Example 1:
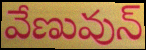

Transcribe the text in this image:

వేణువున్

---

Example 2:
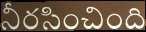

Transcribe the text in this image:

నీరసించింది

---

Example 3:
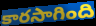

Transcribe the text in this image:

కారసాగింది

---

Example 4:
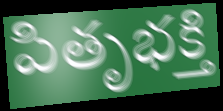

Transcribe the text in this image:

పితృభక్తి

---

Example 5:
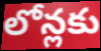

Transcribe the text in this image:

లోన్లకు